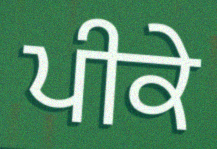
ਪੀਕੇ